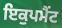
ਇਕੁਪਮੈਂਟ